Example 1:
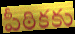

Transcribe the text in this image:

పీఠికకు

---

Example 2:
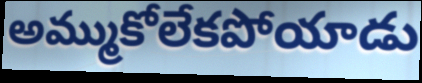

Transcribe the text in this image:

అమ్ముకోలేకపోయాడు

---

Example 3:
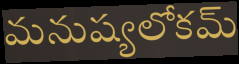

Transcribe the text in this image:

మనుష్యలోకమ్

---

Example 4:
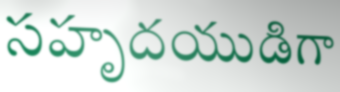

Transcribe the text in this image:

సహృదయుడిగా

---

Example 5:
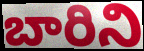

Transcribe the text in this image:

బారిని